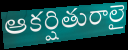
ఆకర్షితురాలై